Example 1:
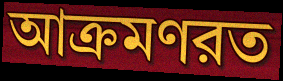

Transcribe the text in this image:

আক্রমণরত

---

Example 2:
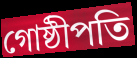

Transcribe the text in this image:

গোষ্ঠীপতি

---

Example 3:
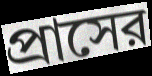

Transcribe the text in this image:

প্রাসের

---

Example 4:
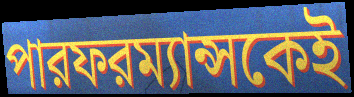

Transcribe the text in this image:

পারফরম্যান্সকেই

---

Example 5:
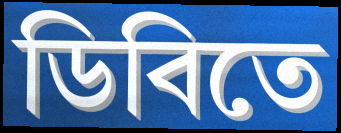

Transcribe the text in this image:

ডিবিতে